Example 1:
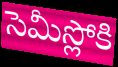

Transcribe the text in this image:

సెమీస్లోకి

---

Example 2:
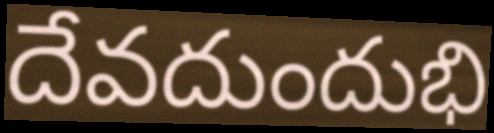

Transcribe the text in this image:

దేవదుందుభి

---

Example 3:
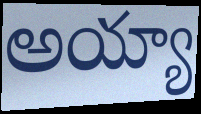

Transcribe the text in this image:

అయ్యా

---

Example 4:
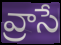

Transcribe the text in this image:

వ్రాసే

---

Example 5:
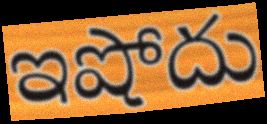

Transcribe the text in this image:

ఇషోదు